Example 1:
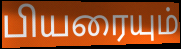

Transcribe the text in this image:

பியரையும்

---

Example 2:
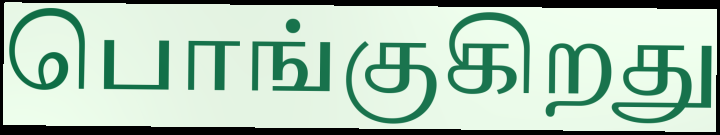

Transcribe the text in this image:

பொங்குகிறது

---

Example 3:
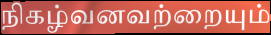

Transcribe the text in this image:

நிகழ்வனவற்றையும்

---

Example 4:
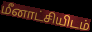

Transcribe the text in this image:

மீனாட்சியிடம்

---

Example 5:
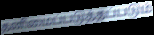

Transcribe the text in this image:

தனிமைப்படுத்தப்படும்